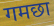
गमछा